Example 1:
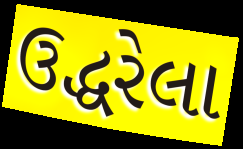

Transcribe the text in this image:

ઉદ્ધરેલા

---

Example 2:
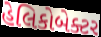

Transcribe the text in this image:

હેલિકોબેક્ટર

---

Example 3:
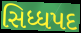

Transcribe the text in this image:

સિધ્ધપદ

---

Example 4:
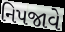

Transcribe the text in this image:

નિપજાવે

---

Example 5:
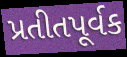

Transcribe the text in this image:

પ્રતીતપૂર્વક